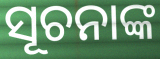
ସୂଚନାଙ୍କ